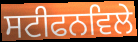
ਸਟੀਫਨਵਿਲੇ